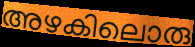
അഴകിലൊരു